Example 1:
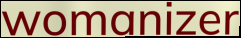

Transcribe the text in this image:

womanizer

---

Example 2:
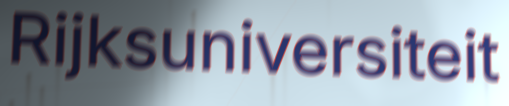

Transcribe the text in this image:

Rijksuniversiteit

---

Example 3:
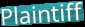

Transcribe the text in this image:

Plaintiff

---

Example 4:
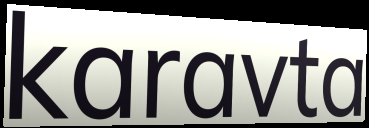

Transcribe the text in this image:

karavta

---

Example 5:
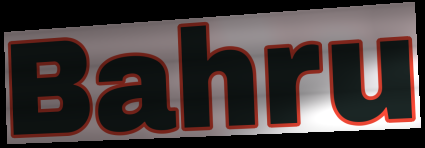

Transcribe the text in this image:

Bahru